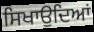
ਸਿਖਾਉਦਿਆਂ